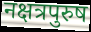
नक्षत्रपुरुष